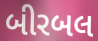
બીરબલ